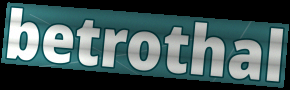
betrothal